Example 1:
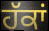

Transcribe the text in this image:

ਹੱਕਾਂ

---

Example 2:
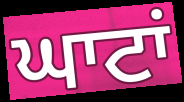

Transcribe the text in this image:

ਘਾਟਾਂ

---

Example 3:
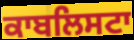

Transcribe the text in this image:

ਕਾਬਲਿਸਟਾ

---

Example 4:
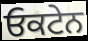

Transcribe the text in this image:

ਓਕਟੇਨ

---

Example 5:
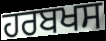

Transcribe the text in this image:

ਹਰਬਖਸ